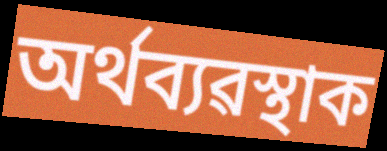
অৰ্থব্যৱস্থাক